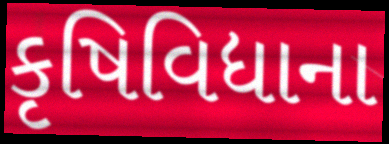
કૃષિવિદ્યાના